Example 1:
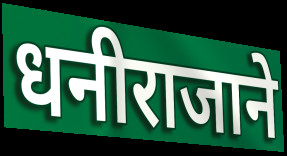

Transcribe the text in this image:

धनीराजाने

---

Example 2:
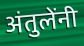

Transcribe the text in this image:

अंतुलेंनी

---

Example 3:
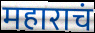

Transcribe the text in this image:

महाराचं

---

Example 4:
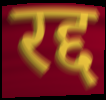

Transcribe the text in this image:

रद्द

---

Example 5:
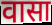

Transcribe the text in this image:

वासा